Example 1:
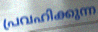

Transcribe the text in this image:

പ്രവഹിക്കുന്ന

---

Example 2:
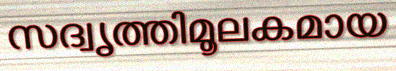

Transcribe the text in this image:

സദ്വൃത്തിമൂലകമായ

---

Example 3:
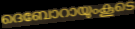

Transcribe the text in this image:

ദെബോറായുംകൂടെ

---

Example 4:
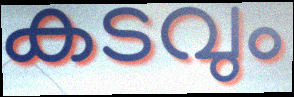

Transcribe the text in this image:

കടവും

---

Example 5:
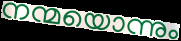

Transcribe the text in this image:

നന്മയൊന്നും